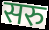
सरु